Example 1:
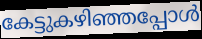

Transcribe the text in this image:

കേട്ടുകഴിഞ്ഞപ്പോൾ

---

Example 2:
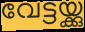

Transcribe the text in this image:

വേട്ടയ്ക്കു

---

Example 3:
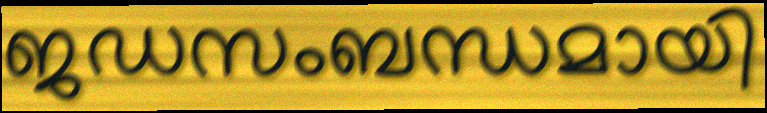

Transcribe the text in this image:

ജഡസംബന്ധമായി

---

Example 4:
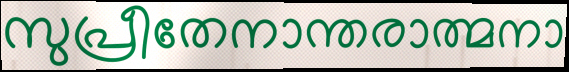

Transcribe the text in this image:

സുപ്രീതേനാന്തരാത്മനാ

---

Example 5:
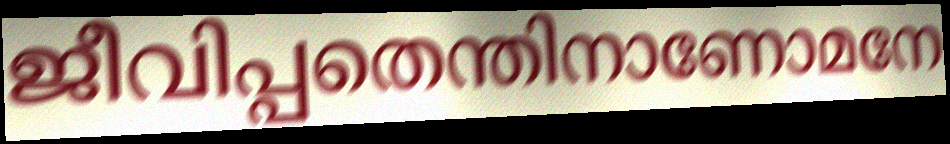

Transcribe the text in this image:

ജീവിപ്പതെന്തിനാണോമനേ